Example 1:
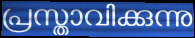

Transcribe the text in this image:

പ്രസ്താവിക്കുന്നു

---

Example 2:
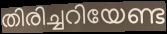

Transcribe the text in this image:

തിരിച്ചറിയേണ്ട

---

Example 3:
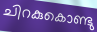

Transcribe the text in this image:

ചിറകുകൊണ്ടു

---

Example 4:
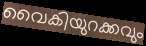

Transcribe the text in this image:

വൈകിയുറക്കവും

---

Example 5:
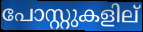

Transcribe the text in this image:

പോസ്റ്റുകളില്